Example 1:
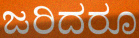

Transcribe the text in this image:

ಜರಿದರೂ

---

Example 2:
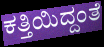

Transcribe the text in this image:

ಕತ್ತಿಯಿದ್ದಂತೆ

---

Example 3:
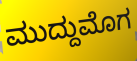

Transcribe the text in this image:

ಮುದ್ದುಮೊಗ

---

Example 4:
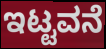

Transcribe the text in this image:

ಇಟ್ಟವನೆ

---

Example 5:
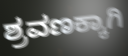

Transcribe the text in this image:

ಶ್ರವಣಕ್ಕಾಗಿ